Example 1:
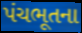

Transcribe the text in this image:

પંચભૂતના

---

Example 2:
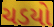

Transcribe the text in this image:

ચડયો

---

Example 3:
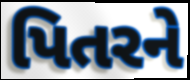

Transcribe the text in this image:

પિતરને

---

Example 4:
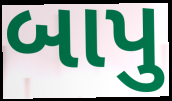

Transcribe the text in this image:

બાપુ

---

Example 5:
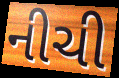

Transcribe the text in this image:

નીચી